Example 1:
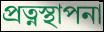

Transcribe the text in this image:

প্রত্নস্থাপনা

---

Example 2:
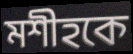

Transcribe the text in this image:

মশীহকে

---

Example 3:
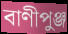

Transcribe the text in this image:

বাণীপুঞ্জ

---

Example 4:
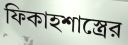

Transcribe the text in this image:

ফিকাহশাস্ত্রের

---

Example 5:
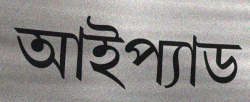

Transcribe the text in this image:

আইপ্যাড